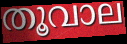
തൂവാല